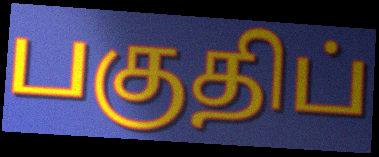
பகுதிப்